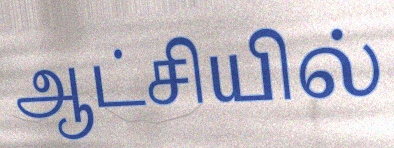
ஆட்சியில்